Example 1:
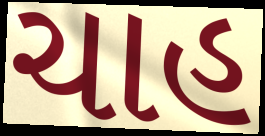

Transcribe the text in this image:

ચાહ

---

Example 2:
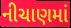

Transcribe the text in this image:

નીચાણમાં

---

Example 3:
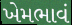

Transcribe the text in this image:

ખેમભાવં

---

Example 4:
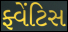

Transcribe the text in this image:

ફ્વેંટિસ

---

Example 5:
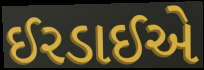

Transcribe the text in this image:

ઈરડાઈએ